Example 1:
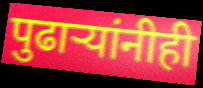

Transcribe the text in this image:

पुढाऱ्यांनीही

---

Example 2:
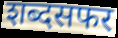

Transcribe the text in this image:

शब्दसफर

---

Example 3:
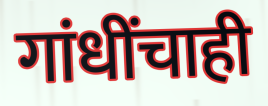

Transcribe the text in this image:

गांधींचाही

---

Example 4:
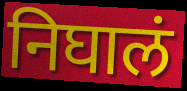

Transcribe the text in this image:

निघालं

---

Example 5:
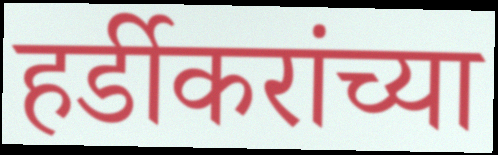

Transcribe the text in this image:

हर्डीकरांच्या